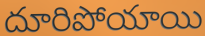
దూరిపోయాయి